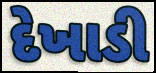
દેખાડી